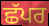
ਛੱਪਰ